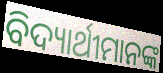
ବିଦ୍ୟାର୍ଥୀମାନଙ୍କ